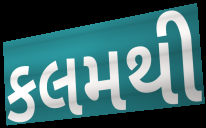
કલમથી